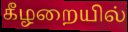
கீழறையில்